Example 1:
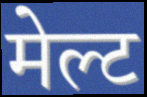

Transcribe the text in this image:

मेल्ट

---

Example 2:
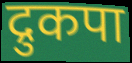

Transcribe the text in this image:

द्रुकपा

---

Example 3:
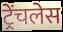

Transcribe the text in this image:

ट्रेंचलेस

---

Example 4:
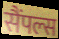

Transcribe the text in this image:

सैंपल्‍स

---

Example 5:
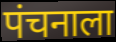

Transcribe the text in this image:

पंचनाला